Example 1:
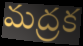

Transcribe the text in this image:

మద్రక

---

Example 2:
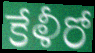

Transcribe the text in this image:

కేళీరో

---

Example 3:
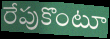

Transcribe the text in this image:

రేపుకొంటూ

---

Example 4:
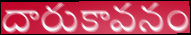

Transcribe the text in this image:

దారుకావనం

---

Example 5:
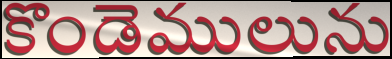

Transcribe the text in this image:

కొండెములును